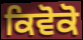
ਕਿਵੋਕੋ